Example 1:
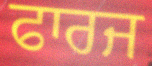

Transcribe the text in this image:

ਫਾਰਜ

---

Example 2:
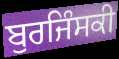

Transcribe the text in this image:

ਬੁਰਜਿੰਸਕੀ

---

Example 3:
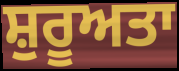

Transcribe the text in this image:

ਸ਼ੁਰੂਅਤਾ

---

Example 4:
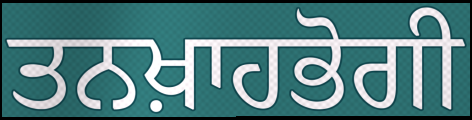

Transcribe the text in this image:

ਤਨਖ਼ਾਹਭੋਗੀ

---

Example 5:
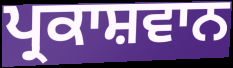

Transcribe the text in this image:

ਪ੍ਰਕਾਸ਼ਵਾਨ